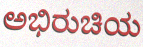
ಅಭಿರುಚಿಯ